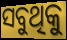
ସବୁଥିକୁ